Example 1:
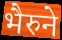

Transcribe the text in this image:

भैरुने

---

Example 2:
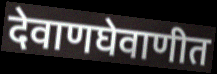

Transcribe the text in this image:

देवाणघेवाणीत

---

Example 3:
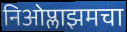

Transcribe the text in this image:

निओप्लाझमचा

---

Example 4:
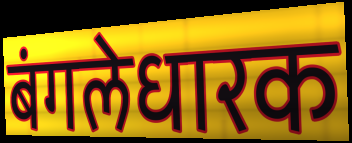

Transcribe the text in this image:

बंगलेधारक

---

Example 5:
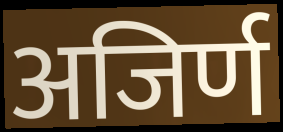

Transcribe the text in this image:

अजिर्ण